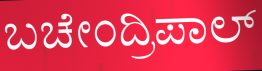
ಬಚೇಂದ್ರಿಪಾಲ್